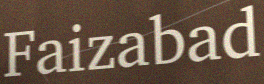
Faizabad